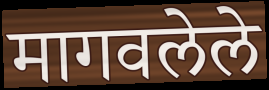
मागवलेले